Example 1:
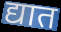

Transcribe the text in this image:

द्यात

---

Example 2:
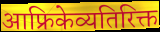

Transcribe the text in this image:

आफ्रिकेव्यतिरिक्त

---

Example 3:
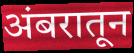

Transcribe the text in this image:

अंबरातून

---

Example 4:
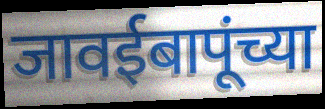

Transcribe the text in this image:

जावईबापूंच्या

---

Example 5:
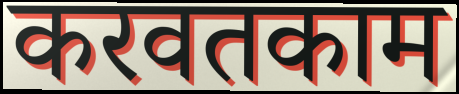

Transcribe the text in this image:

करवतकाम